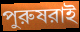
পুরুষরাই